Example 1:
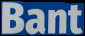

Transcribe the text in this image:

Bant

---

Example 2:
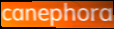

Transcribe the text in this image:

canephora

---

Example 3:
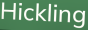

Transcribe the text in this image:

Hickling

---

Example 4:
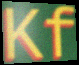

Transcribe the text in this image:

Kf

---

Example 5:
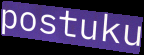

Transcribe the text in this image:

postuku